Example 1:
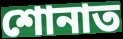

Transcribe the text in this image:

শোনাত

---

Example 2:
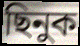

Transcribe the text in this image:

ছিনুক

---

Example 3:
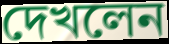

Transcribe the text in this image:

দেখলেন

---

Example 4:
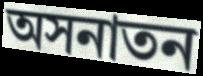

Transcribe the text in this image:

অসনাতন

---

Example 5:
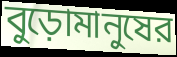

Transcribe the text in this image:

বুড়োমানুষের